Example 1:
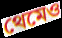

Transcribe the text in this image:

থেমেও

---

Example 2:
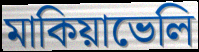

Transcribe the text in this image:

মাকিয়াভেলি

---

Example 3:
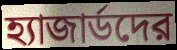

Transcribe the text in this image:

হ্যাজার্ডদের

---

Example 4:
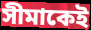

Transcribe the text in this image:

সীমাকেই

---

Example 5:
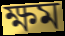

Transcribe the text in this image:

ক্ষম